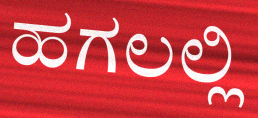
ಹಗಲಲ್ಲಿ